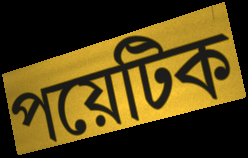
পয়েটিক